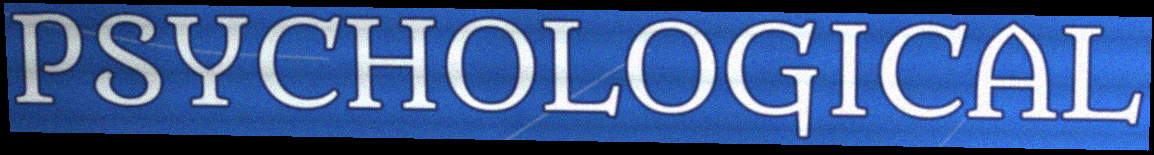
PSYCHOLOGICAL